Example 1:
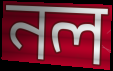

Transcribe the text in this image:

নল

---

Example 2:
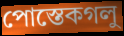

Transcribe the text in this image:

পোস্তেকগলু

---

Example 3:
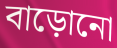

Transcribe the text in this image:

বাড়োনো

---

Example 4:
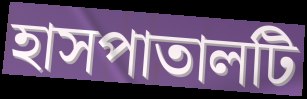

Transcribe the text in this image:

হাসপাতালটি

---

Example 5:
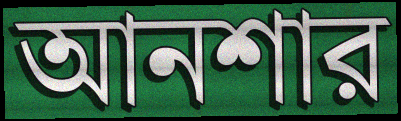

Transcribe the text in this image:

আনশার